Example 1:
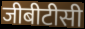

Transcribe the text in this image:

जीबीटीसी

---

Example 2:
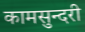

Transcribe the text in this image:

कामसुन्दरी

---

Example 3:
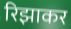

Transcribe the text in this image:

रिझाकर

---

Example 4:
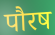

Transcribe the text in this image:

पौरष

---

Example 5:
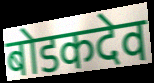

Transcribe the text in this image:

बोडकदेव